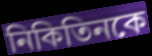
নিকিতিনকে